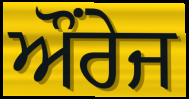
ਔਂਰੇਜ